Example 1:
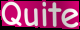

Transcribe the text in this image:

Quite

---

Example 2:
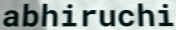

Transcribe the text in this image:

abhiruchi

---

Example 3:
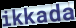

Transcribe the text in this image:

ikkada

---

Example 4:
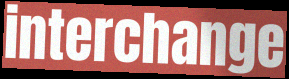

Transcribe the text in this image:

interchange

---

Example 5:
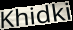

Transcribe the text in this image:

Khidki